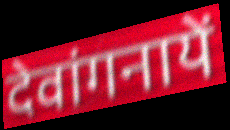
देवांगनायें